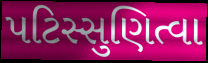
પટિસ્સુણિત્વા